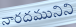
నారదమునిని